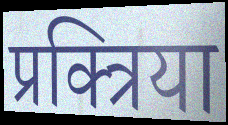
प्रक्त्रिया